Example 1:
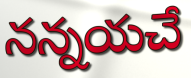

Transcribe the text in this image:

నన్నయచే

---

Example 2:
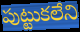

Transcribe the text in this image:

పుట్టుకలేని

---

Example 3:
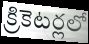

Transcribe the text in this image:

క్రికెటర్లలో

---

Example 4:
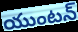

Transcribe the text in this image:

యుంటన్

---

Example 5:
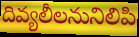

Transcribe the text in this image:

దివ్యలీలనునిలిపి